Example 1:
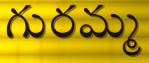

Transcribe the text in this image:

గురమ్మ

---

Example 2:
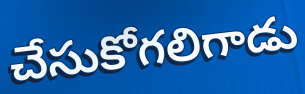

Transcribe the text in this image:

చేసుకోగలిగాడు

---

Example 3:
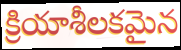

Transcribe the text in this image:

క్రియాశీలకమైన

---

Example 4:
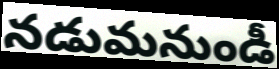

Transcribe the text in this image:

నడుమనుండీ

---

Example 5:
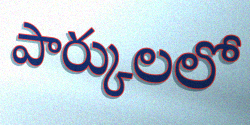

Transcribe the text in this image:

పార్కులలో